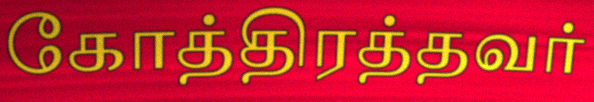
கோத்திரத்தவர்